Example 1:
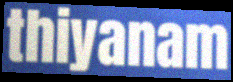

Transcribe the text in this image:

thiyanam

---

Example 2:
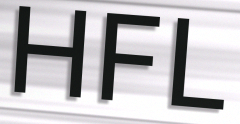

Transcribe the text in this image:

HFL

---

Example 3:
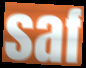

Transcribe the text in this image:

saf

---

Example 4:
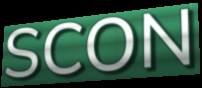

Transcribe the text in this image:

SCON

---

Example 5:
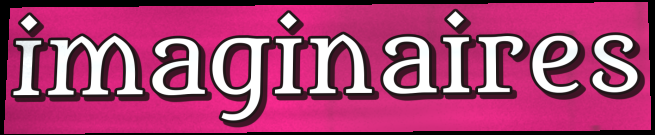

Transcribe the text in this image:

imaginaires